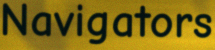
Navigators